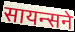
सायन्सने